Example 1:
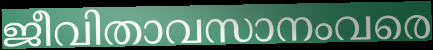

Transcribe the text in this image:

ജീവിതാവസാനംവരെ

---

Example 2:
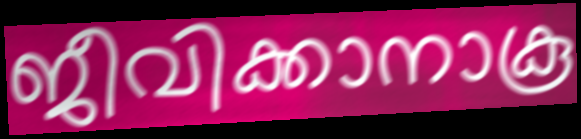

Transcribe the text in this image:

ജീവിക്കാനാകൂ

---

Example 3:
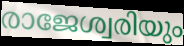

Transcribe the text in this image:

രാജേശ്വരിയും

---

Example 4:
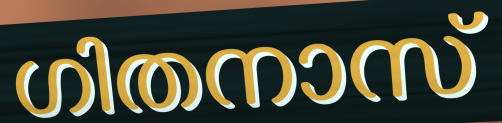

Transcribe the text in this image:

ഗിതനാസ്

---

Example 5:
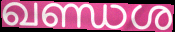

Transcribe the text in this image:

ഖണ്ഡശ